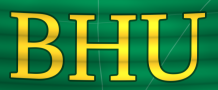
BHU